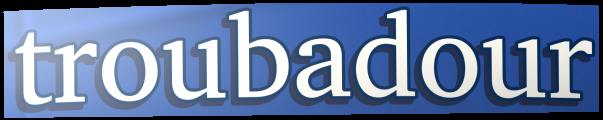
troubadour